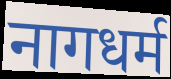
नागधर्म